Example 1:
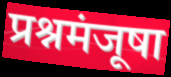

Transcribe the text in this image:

प्रश्नमंजूषा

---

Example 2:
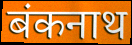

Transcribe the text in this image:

बंकनाथ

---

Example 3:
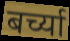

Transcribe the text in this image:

बर्च्या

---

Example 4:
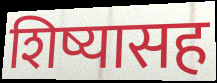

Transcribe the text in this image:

शिष्यासह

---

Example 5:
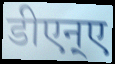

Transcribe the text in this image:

डीएन्ए